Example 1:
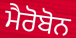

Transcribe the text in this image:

ਮੈਰੋਬੋਨ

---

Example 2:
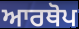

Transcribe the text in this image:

ਆਰਥੋਪ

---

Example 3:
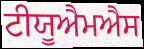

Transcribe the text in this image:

ਟੀਯੂਐਮਐਸ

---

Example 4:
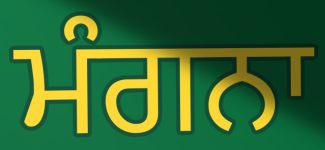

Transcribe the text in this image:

ਮੰਗਨਾ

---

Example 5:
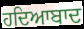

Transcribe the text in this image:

ਹਦਿਆਬਾਦ